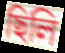
ছিলি